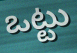
ఒట్టు